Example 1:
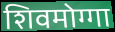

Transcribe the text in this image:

शिवमोग्गा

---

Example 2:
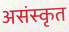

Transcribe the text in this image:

असंस्कृत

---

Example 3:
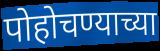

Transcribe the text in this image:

पोहोचण्याच्या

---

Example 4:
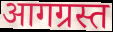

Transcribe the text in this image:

आगग्रस्त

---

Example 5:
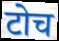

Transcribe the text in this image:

टोच